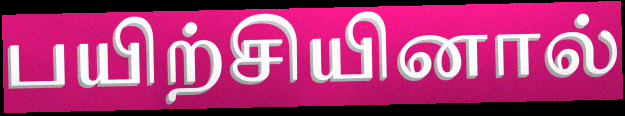
பயிற்சியினால்